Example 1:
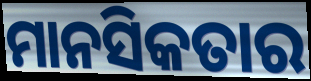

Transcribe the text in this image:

ମାନସିକତାର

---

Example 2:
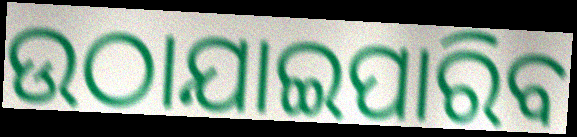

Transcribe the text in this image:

ଉଠାଯାଇପାରିବ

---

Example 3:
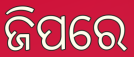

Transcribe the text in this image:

ଜିପରେ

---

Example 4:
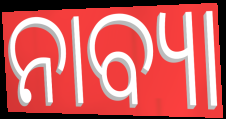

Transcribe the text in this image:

ନାବ୍ୟା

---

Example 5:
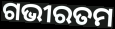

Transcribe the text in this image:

ଗଭୀରତମ